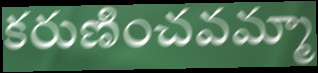
కరుణించవమ్మా